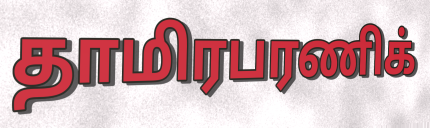
தாமிரபரணிக்